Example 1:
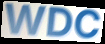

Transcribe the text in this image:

WDC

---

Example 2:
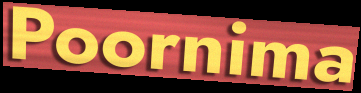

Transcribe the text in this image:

Poornima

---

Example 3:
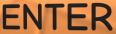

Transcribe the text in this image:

ENTER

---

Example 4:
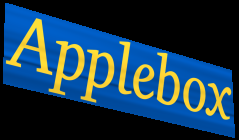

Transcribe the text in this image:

Applebox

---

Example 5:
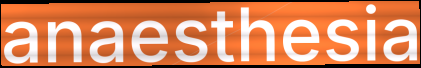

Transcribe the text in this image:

anaesthesia